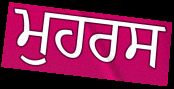
ਮੁਹਰਸ